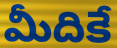
మీదికే